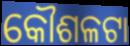
କୌଶଳଟା